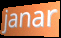
janar